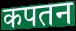
कपतन